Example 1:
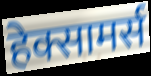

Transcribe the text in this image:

हेक्सामर्स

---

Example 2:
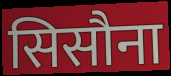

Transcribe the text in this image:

सिसौना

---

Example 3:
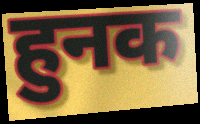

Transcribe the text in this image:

हुनक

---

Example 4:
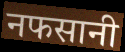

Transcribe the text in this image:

नफसानी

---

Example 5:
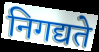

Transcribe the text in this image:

निगद्यते